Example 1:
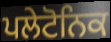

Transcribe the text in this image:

ਪਲੇਟੋਨਿਕ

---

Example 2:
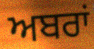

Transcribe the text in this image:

ਅਬਰਾਂ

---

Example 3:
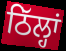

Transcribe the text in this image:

ਠਿੱਲ੍ਹਾਂ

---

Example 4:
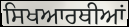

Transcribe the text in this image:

ਸਿਖਆਰਥੀਆਂ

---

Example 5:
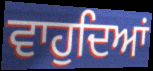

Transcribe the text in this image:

ਵਾਹੁਦਿਆਂ